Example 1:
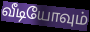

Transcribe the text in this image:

வீடியோவும்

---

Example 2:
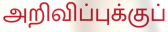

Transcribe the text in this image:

அறிவிப்புக்குப்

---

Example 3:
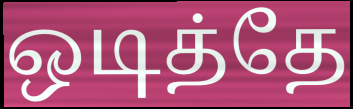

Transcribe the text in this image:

ஒடித்தே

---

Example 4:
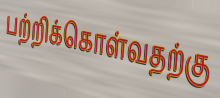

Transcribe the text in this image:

பற்றிக்கொள்வதற்கு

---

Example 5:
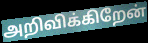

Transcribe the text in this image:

அறிவிக்கிறேன்